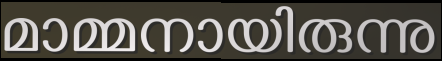
മാമ്മനായിരുന്നു